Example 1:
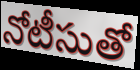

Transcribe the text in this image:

నోటీసుతో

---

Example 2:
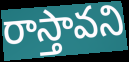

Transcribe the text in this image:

రాస్తావని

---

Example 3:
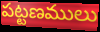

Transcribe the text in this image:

పట్టణములు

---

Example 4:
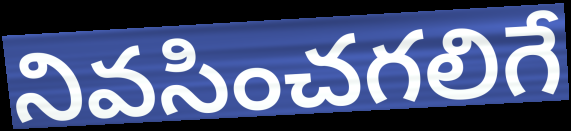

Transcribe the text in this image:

నివసించగలిగే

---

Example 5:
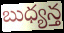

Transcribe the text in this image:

బుధ్యన్త